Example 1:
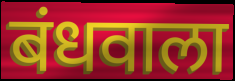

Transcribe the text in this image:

बंधवाला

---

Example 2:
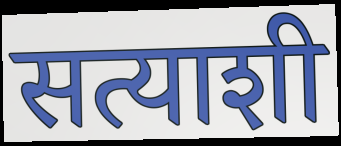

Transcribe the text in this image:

सत्याशी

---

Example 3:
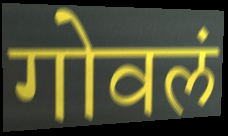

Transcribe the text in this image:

गोवलं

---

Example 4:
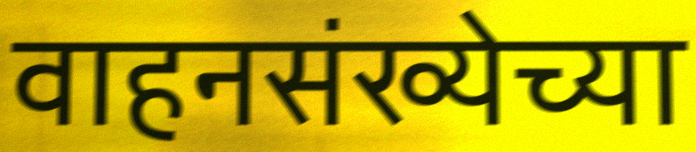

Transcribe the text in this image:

वाहनसंख्येच्या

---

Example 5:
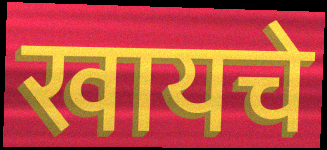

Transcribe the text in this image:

खायचे